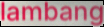
lambang